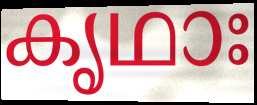
കൃഥാഃ